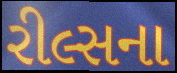
રીલ્સના